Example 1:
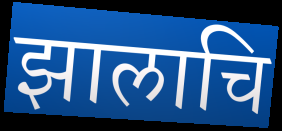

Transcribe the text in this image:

झालाचि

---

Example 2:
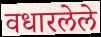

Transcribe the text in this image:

वधारलेले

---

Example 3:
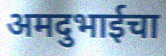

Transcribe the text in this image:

अमदुभाईचा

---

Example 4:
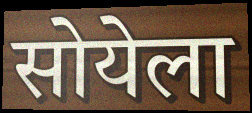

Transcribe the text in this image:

सोयेला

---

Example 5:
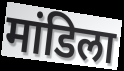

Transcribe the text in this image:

मांडिला